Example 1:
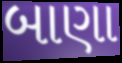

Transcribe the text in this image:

બાણા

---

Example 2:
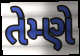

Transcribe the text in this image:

તેમ્ણે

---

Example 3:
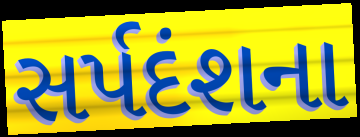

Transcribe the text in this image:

સર્પદંશના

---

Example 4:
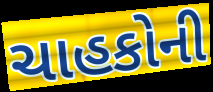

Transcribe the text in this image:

ચાહકોની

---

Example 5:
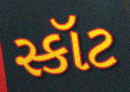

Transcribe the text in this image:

સ્કૉટ